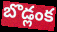
బొడ్లంక